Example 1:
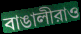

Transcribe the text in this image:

বাঙালীরাও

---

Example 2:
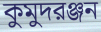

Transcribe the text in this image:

কুমুদরঞ্জন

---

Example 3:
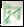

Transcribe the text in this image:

টুব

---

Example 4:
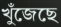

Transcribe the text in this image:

খুঁজেছে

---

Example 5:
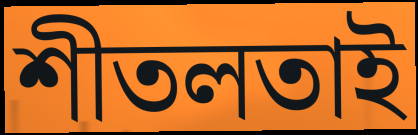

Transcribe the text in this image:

শীতলতাই